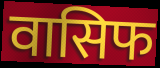
वासिफ